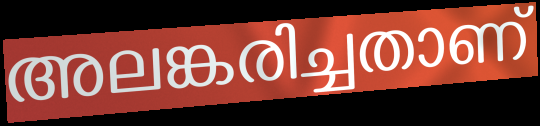
അലങ്കരിച്ചതാണ്